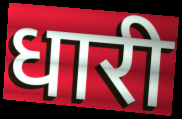
धारी